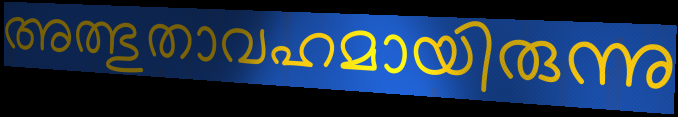
അത്ഭുതാവഹമായിരുന്നു